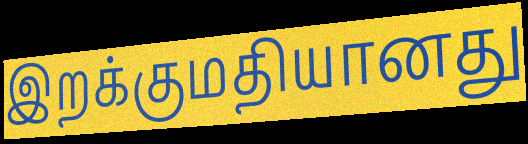
இறக்குமதியானது